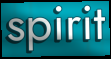
spirit